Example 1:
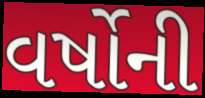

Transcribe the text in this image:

વર્ષોની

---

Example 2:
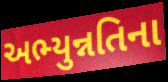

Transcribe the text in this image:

અભ્યુન્નતિના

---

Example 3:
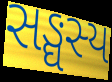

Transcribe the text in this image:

સઙ્ઘસ્ય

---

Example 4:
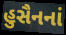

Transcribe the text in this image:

હુસૈનનાં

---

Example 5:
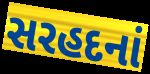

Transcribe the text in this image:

સરહદનાં